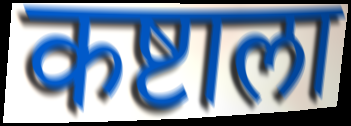
कष्टाला